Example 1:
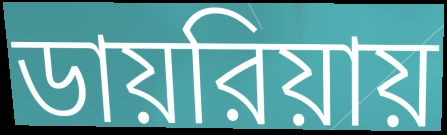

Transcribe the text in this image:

ডায়রিয়ায়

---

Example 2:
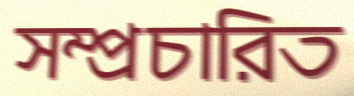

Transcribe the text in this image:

সম্প্রচারিত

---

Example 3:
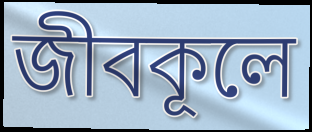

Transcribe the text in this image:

জীবকূলে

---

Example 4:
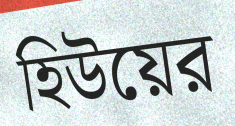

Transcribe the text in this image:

হিউয়ের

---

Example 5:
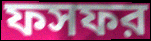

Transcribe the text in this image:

ফসফর